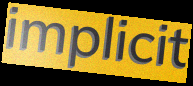
implicit